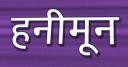
हनीमून